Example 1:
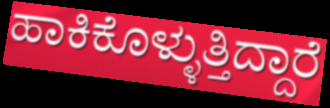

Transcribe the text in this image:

ಹಾಕಿಕೊಳ್ಳುತ್ತಿದ್ದಾರೆ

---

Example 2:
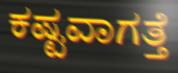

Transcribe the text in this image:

ಕಷ್ಟವಾಗತ್ತೆ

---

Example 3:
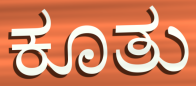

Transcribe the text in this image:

ಕೂತು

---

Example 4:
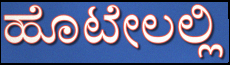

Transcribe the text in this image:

ಹೊಟೇಲಲ್ಲಿ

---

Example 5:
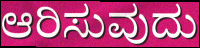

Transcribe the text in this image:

ಆರಿಸುವುದು